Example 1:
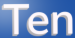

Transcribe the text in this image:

Ten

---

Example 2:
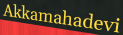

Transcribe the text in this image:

Akkamahadevi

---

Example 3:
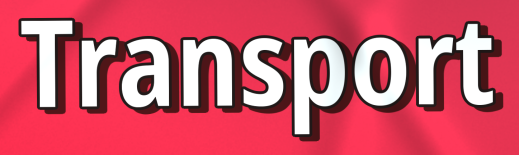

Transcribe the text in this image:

Transport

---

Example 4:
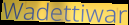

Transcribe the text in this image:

Wadettiwar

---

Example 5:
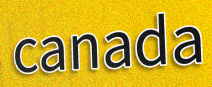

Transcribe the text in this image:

canada